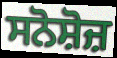
ਸਨੋਸ਼ੋਜ਼